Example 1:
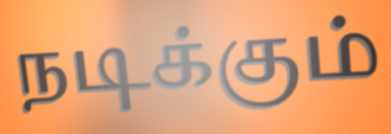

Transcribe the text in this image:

நடிக்கும்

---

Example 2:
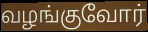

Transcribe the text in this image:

வழங்குவோர்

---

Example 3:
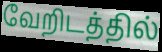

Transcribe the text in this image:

வேறிடத்தில்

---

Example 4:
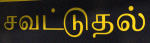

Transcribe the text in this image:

சவட்டுதல்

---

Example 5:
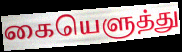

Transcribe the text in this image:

கையெளுத்து